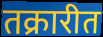
तक्रारीत